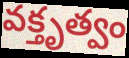
వక్తృత్వం